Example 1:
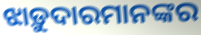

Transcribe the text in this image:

ଝାଡ଼ୁଦାରମାନଙ୍କର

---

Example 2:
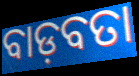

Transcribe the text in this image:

ବାଡ଼ବତା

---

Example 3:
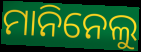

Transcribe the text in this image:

ମାନିନେଲୁ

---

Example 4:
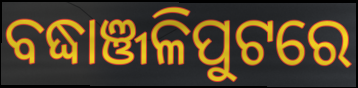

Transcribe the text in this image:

ବଦ୍ଧାଞ୍ଜଳିପୁଟରେ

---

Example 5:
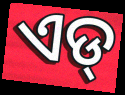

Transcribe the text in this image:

ଏଡ୍